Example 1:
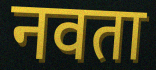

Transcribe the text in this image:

नवता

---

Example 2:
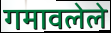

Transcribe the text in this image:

गमावलेले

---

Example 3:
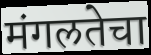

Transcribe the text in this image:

मंगलतेचा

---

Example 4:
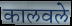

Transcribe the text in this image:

कालवले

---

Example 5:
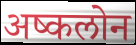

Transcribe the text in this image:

अष्कलोन